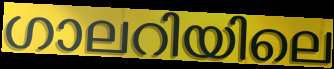
ഗാലറിയിലെ